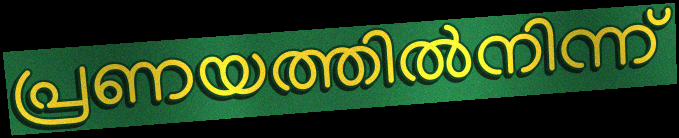
പ്രണയത്തിൽനിന്ന്